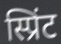
स्प्रिंट